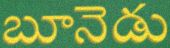
బూనెడు